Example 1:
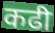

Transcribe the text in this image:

कढी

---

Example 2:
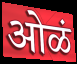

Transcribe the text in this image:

ओळं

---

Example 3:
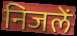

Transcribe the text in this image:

निजलें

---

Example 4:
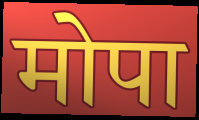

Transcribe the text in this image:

मोपा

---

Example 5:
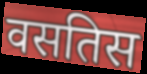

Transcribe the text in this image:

वसतिस